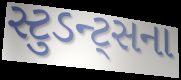
સ્ટુડન્ટ્સના